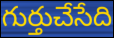
గుర్తుచేసేది